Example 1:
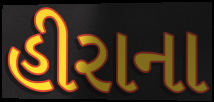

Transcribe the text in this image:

હીરાના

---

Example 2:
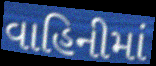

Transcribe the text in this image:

વાહિનીમાં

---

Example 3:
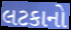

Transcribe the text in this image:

લટકાનો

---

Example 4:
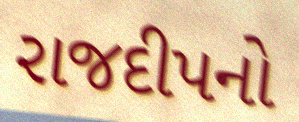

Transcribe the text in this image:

રાજદીપનો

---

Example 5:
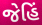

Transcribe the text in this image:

જેહિં